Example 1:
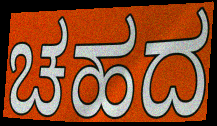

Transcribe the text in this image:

ಚಹದ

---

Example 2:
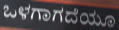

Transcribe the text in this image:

ಒಳಗಾಗದೆಯೂ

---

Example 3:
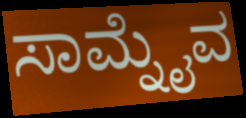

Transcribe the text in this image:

ಸಾಮ್ನೈವ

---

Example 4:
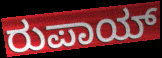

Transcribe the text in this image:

ರುಪಾಯ್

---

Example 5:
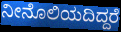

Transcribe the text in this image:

ನೀನೊಲಿಯದಿದ್ದರೆ